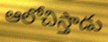
ఆలోచిస్తాడు